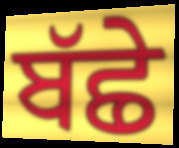
ਬੱਛੇ